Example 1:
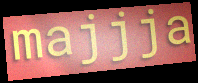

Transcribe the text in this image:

majjja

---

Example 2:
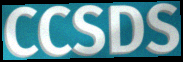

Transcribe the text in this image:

CCSDS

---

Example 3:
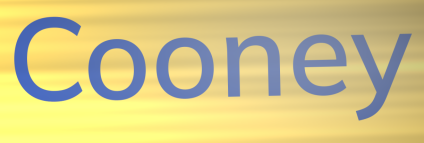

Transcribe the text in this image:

Cooney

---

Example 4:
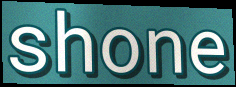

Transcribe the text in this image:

shone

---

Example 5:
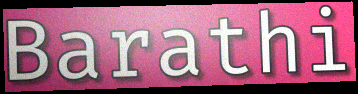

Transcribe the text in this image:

Barathi